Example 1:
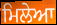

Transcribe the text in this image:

ਮਿਲੇਆ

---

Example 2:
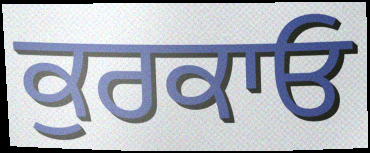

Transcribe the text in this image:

ਕੁਰਕਾਓ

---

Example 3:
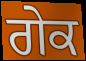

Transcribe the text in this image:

ਗੇਕ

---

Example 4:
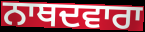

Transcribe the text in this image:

ਨਾਥਦਵਾਰਾ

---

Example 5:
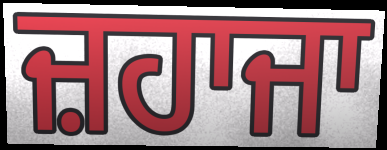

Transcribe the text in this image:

ਜ਼ਹਾਜਾ